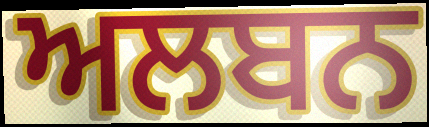
ਅਲਬਨ